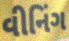
વીનિંગ